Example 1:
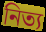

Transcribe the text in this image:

নিত্য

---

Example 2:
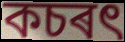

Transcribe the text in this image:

কচৰৎ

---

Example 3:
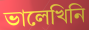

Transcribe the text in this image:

ভালেখিনি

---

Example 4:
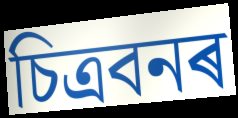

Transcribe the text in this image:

চিত্ৰবনৰ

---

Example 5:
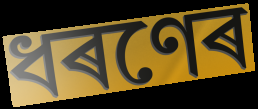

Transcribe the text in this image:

ধৰণেৰ